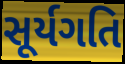
સૂર્યગતિ